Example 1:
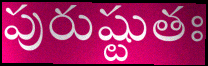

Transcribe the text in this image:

పురుష్టుతః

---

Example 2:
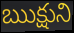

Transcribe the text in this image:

ఋక్షుని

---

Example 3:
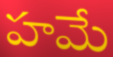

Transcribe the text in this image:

హమే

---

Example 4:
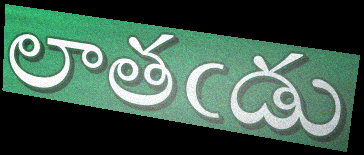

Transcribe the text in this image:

లాతఁడు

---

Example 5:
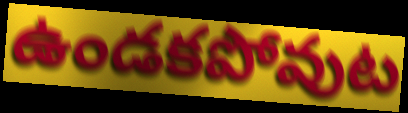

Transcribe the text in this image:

ఉండకపోవుట